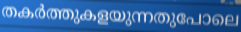
തകർത്തുകളയുന്നതുപോലെ